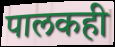
पालकही